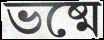
ভষ্মে